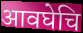
आवघेचि